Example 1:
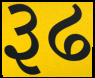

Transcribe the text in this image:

રૂઢ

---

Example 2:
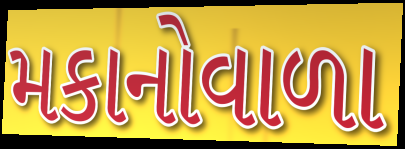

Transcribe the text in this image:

મકાનોવાળા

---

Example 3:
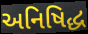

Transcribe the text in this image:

અનિષિદ્ધ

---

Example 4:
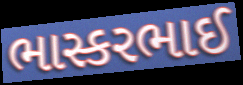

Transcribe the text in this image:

ભાસ્કરભાઈ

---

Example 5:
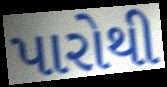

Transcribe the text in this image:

પારોથી